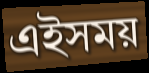
এইসময়